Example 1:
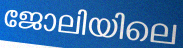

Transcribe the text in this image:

ജോലിയിലെ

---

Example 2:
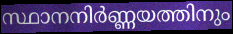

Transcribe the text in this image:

സ്ഥാനനിർണ്ണയത്തിനും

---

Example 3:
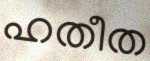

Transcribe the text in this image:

ഹതീത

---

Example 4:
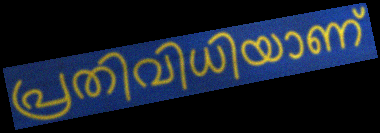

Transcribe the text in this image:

പ്രതിവിധിയാണ്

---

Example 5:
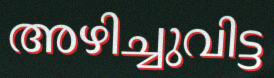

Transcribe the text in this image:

അഴിച്ചുവിട്ട